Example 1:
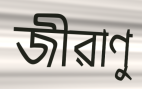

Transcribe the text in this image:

জীৱাণু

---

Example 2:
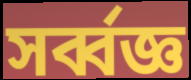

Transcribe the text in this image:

সৰ্ব্বজ্ঞ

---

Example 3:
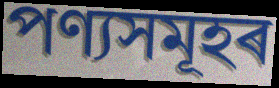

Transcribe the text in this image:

পণ্যসমূহৰ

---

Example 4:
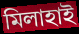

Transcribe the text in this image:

মিলাহাই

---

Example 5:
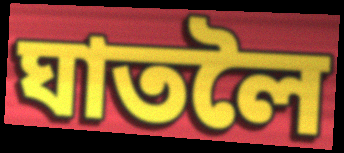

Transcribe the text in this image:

ঘাতলৈ